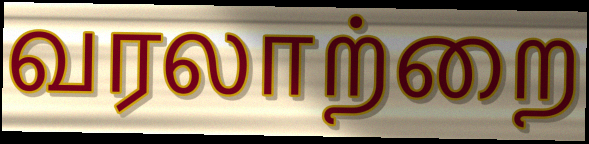
வரலாற்றை